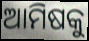
ଆମିଷକୁ